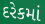
દરેકમાં